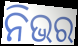
ନିଭର